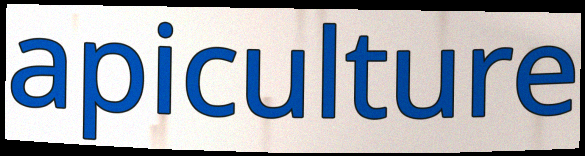
apiculture